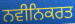
ਨਵੀਨਿਕਰਤ